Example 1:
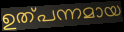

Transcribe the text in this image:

ഉത്പന്നമായ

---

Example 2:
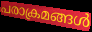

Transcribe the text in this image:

പരാക്രമങ്ങൾ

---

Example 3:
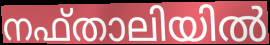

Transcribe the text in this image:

നഫ്താലിയിൽ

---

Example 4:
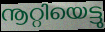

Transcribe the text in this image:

നൂറ്റിയെട്ടു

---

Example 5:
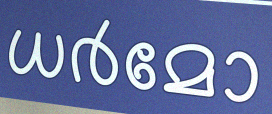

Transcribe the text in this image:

ധർമോ